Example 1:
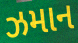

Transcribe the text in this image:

ઝમાન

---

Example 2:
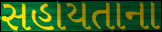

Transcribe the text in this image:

સહાયતાના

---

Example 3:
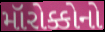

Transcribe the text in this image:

મૉરોક્કોનો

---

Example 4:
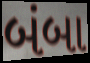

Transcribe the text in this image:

બંબા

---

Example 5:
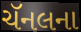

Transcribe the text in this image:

ચૅનલના